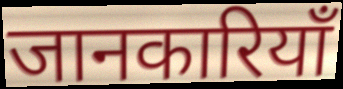
जानकारियाँ